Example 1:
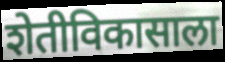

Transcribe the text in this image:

शेतीविकासाला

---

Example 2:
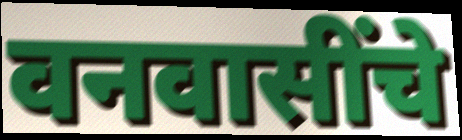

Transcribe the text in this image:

वनवासींचे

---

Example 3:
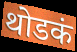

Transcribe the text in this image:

थोडकं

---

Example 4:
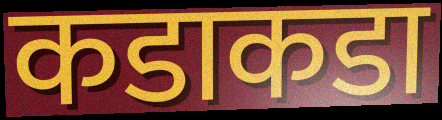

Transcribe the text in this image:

कडाकडा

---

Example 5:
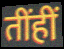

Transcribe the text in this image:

तींहीं